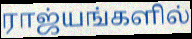
ராஜ்யங்களில்